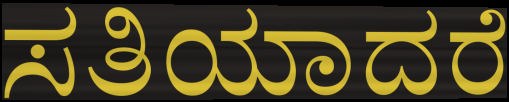
ಸತಿಯಾದರೆ